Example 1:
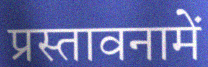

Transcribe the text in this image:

प्रस्तावनामें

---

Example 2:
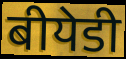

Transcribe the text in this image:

बीयेडी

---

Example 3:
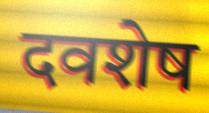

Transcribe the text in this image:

दवशेष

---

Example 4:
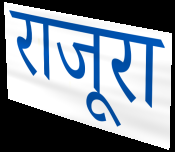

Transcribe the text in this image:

राजूरा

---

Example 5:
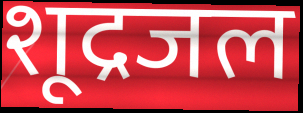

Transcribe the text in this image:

शूद्रजल